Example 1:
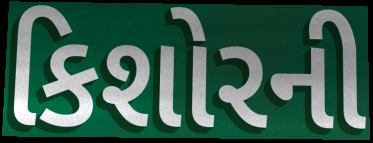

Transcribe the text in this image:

કિશોરની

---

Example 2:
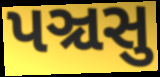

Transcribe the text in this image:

પઞ્ચસુ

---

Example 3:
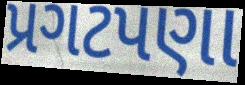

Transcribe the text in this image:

પ્રગટપણા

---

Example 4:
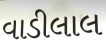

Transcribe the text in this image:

વાડીલાલ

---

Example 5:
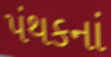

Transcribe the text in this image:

પંથકનાં